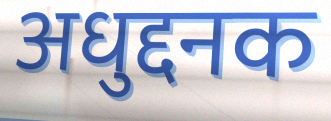
अधुद्दनक